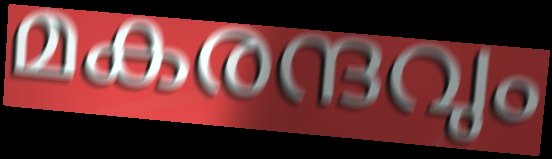
മകരന്ദവും